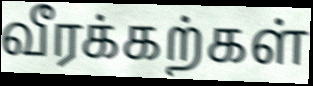
வீரக்கற்கள்